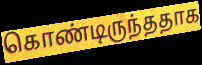
கொண்டிருந்ததாக